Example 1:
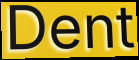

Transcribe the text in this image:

Dent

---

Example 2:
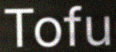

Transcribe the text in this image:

Tofu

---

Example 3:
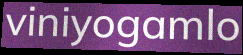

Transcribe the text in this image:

viniyogamlo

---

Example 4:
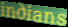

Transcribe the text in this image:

indians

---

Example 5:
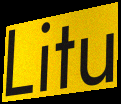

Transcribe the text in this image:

Litu